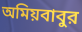
অমিয়বাবুর